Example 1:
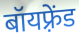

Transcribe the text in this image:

बॉयफ़्रेंड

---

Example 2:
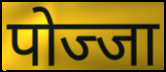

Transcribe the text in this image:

पोज्जा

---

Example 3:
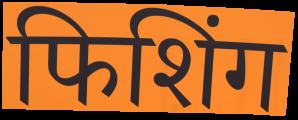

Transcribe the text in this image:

फिशिंग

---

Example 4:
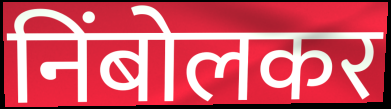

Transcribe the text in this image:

निंबोलकर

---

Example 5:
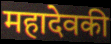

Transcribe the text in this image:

महादेवकी